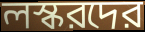
লস্করদের